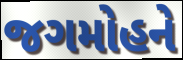
જગમોહને